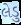
લેડુ